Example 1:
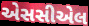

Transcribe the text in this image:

એસસીએલ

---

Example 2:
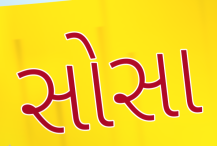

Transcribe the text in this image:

સોસા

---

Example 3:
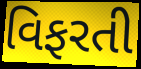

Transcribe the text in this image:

વિફરતી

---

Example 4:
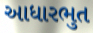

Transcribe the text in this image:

આધારભુત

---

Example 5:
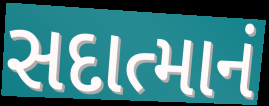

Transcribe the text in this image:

સદાત્માનં